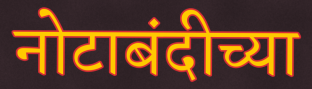
नोटाबंदीच्या